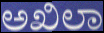
ಅಖಿಲಾ